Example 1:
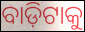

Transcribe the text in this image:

ବାଡ଼ିଟାକୁ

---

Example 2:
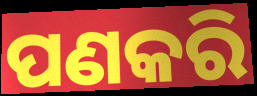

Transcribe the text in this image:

ପଣକରି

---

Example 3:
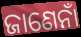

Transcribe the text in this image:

ଜାଣେନାଁ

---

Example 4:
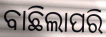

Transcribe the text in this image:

ବାଛିଲାପରି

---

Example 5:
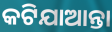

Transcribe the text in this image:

କଟିଯାଆନ୍ତା